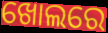
ଖୋଲରେ